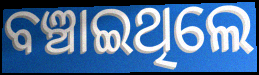
ବଞ୍ଚାଇଥିଲେ